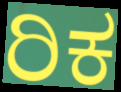
ರಿಕ